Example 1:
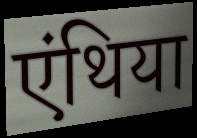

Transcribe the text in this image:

एंथिया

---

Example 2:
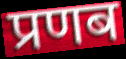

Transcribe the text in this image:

प्रणब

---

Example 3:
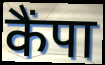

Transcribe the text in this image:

कैंपा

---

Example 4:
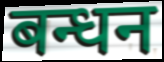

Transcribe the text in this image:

बन्धन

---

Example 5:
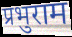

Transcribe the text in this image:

प्रभुराम